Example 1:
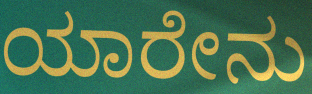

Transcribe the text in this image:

ಯಾರೇನು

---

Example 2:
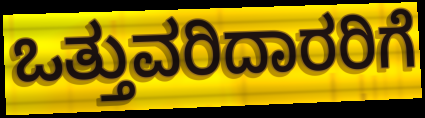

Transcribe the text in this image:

ಒತ್ತುವರಿದಾರರಿಗೆ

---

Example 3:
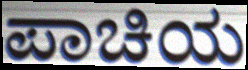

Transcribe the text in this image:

ಪಾಚಿಯ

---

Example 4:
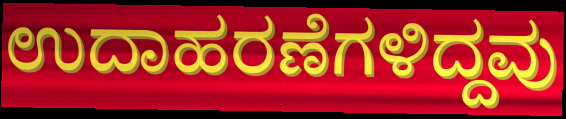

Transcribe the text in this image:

ಉದಾಹರಣೆಗಳಿದ್ದವು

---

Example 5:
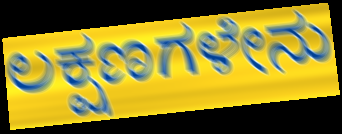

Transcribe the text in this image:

ಲಕ್ಷಣಗಳೇನು